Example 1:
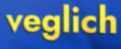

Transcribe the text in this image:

veglich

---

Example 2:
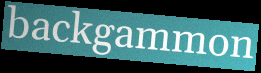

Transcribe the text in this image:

backgammon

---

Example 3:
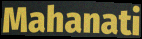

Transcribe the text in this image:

Mahanati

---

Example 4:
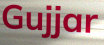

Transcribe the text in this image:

Gujjar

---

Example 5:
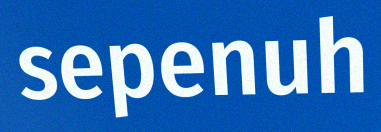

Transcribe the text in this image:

sepenuh